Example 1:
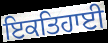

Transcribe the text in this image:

ਇਕਤਿਹਾਈ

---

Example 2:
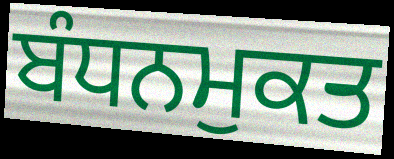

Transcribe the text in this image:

ਬੰਧਨਮੁਕਤ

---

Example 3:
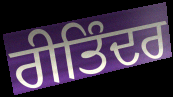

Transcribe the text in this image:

ਰੀਤਿੰਦਰ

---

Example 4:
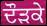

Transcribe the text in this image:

ਦੌੜਕੇ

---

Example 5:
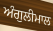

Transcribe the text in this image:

ਅੰਗੁਲੀਮਾਲ